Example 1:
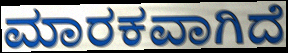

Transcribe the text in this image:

ಮಾರಕವಾಗಿದೆ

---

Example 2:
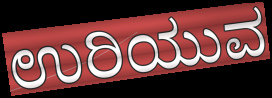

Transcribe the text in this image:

ಉರಿಯುವ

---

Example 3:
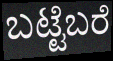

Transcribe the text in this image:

ಬಟ್ಟೆಬರೆ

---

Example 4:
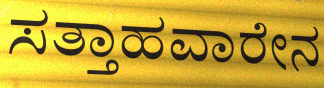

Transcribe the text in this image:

ಸತ್ತಾಹವಾರೇನ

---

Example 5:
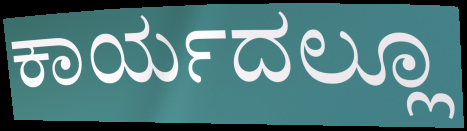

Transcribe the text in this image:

ಕಾರ್ಯದಲ್ಲೂ